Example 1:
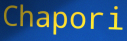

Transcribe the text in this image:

Chapori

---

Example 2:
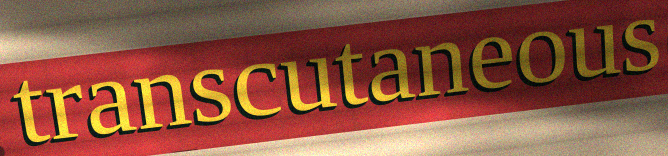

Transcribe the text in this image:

transcutaneous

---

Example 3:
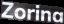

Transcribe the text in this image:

Zorina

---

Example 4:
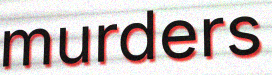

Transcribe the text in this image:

murders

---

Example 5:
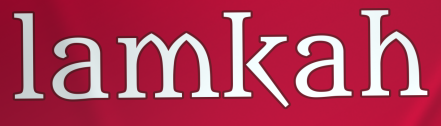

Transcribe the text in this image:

lamkah